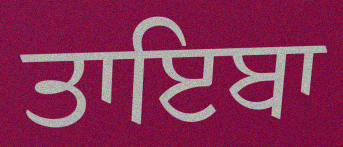
ਤਾਇਬਾ